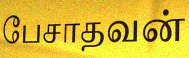
பேசாதவன்